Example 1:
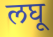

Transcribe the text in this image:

लघू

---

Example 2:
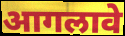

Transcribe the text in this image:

आगलावे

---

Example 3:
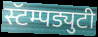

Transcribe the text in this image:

स्टॅम्पड्युटी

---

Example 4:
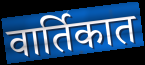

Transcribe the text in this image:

वार्तिकात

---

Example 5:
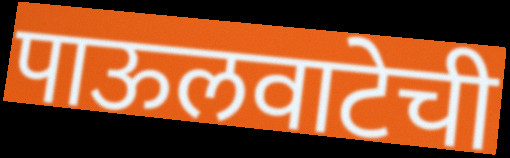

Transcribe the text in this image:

पाऊलवाटेची